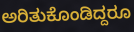
ಅರಿತುಕೊಂಡಿದ್ದರೂ